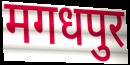
मगधपुर